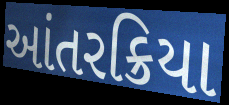
આંતરક્રિયા